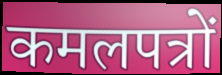
कमलपत्रों